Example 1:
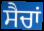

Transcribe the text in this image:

ਸੈਚਾਂ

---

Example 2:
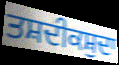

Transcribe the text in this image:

ਤਸ਼ਦੀਕਸ਼ੁਦਾ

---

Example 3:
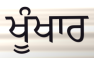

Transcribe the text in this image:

ਖੂੰਖਾਰ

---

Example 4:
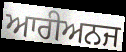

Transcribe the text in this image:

ਆਰੀਅਨਜ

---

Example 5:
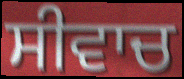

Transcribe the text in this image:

ਸੀਵਾਚ